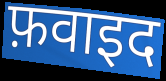
फ़वाइद